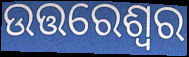
ଉତ୍ତରେଶ୍ୱର